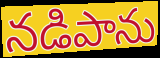
నడిపాను